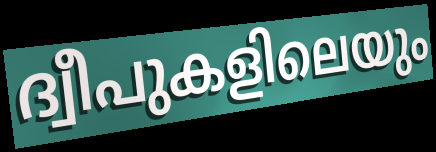
ദ്വീപുകളിലെയും